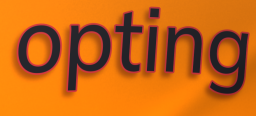
opting